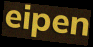
eipen